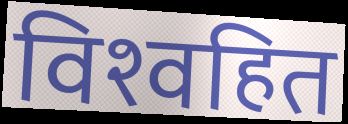
विश्वहित